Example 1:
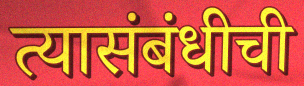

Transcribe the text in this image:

त्यासंबंधीची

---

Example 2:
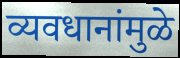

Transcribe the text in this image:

व्यवधानांमुळे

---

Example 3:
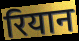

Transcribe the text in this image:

रियान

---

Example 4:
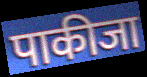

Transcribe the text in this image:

पाकीजा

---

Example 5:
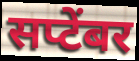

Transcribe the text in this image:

सप्टेंबर